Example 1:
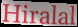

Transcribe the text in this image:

Hiralal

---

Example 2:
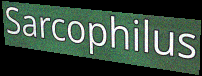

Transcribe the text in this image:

Sarcophilus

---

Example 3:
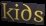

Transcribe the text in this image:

kids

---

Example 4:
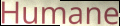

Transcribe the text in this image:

Humane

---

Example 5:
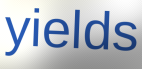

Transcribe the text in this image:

yields